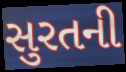
સુરતની